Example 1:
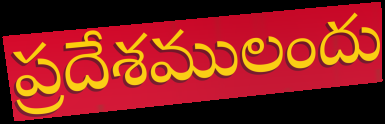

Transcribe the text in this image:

ప్రదేశములందు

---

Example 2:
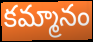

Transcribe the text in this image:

కమ్మానం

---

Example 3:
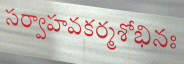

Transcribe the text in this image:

సర్వాహవకర్మశోభినః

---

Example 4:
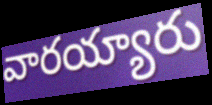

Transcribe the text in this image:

వారయ్యారు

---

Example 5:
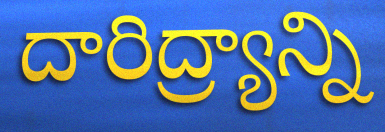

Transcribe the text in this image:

దారిద్ర్యాన్ని